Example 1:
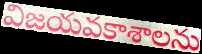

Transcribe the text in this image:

విజయవకాశాలను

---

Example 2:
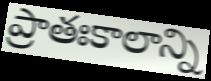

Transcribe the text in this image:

ప్రాతఃకాలాన్ని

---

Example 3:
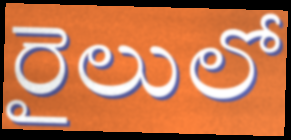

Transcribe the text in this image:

రైలులో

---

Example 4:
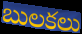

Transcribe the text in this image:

బులకలు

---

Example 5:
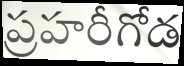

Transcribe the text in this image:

ప్రహరీగోడ